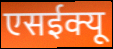
एसईक्यू